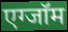
एग्जॉम